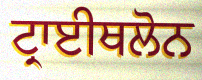
ਟ੍ਰਾਈਥਲੋਨ